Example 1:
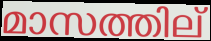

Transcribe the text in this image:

മാസത്തില്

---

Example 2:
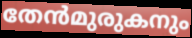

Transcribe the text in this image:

തേൻമുരുകനും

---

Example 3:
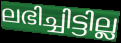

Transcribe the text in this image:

ലഭിച്ചിട്ടില്ല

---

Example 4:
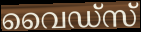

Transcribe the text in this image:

വൈഡ്സ്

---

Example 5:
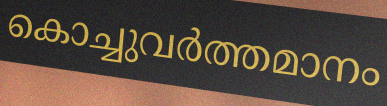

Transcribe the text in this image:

കൊച്ചുവർത്തമാനം